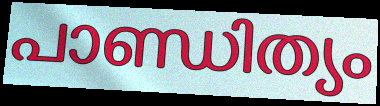
പാണ്ഡിത്യം